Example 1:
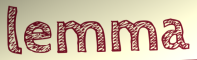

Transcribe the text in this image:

lemma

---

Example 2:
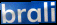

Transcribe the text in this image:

brali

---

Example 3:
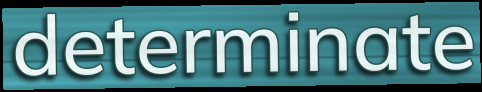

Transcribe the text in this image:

determinate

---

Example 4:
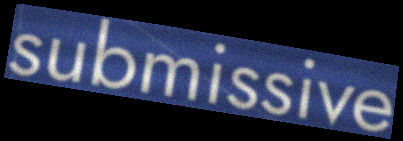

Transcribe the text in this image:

submissive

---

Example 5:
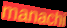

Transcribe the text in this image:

manachi